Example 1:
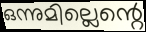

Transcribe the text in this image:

ഒന്നുമില്ലെന്റെ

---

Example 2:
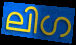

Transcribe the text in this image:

ലിഗ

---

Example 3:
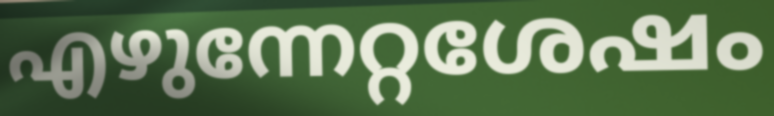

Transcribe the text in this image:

എഴുന്നേറ്റശേഷം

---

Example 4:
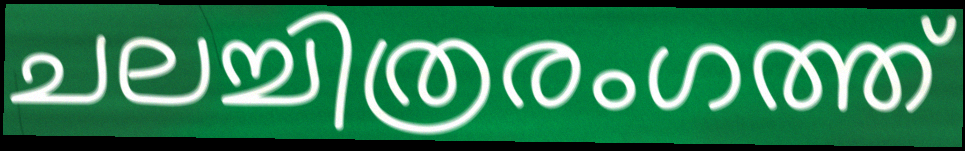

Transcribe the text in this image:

ചലച്ചിത്രരംഗത്ത്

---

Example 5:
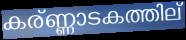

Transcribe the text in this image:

കര്ണ്ണാടകത്തില്